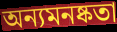
অন্যমনষ্কতা